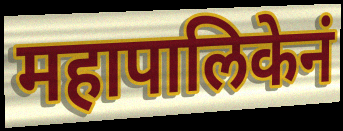
महापालिकेनं